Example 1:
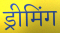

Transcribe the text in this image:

ड्रीमिंग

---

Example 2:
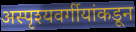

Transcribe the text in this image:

अस्पृश्यवर्गीयांकडून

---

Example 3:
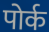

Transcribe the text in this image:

पोर्क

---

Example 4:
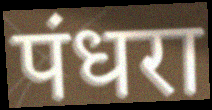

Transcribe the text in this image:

पंधरा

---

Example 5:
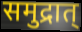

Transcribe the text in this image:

समुद्रात्